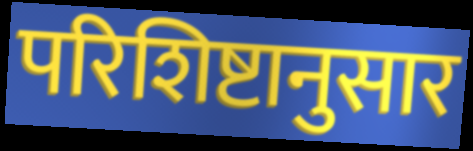
परिशिष्टानुसार